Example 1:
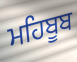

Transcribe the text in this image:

ਮਹਿਬੂਬ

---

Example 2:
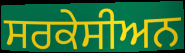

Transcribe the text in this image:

ਸਰਕੇਸੀਅਨ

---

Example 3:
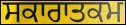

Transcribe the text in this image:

ਸਕਾਰਾਤਕਮ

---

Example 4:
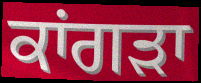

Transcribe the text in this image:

ਕਾਂਗਡ਼ਾ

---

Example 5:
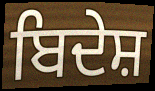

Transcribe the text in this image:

ਬਿਦੇਸ਼